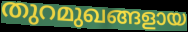
തുറമുഖങ്ങളായ